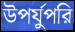
উপর্যুপরি